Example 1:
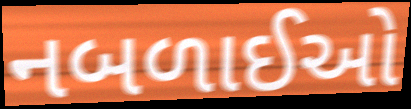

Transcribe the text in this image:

નબળાઈઓ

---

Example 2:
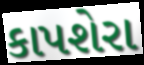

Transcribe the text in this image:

કાપશેરા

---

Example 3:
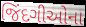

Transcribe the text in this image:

જિંદગીઓના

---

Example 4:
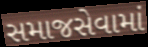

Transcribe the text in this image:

સમાજસેવામાં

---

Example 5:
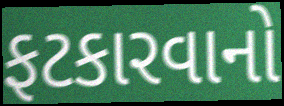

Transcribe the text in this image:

ફટકારવાનો